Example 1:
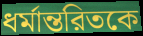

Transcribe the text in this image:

ধর্মান্তরিতকে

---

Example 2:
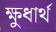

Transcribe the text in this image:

ক্ষুধার্থ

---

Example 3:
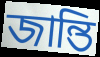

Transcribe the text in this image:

জান্তি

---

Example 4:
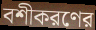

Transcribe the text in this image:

বশীকরণের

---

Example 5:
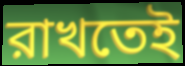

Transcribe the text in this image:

রাখতেই